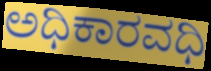
ಅಧಿಕಾರವಧಿ